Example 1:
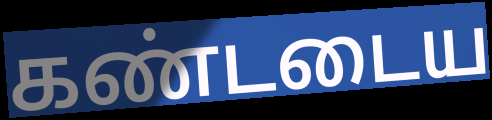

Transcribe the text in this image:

கண்டடைய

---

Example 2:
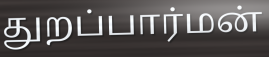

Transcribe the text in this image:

துறப்பார்மன்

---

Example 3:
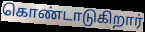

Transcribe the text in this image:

கொண்டாடுகிறார்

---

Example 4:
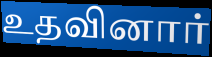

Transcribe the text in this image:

உதவினார்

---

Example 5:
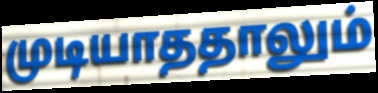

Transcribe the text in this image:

முடியாததாலும்